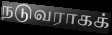
நடுவராகக்